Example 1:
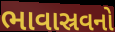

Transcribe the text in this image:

ભાવાસ્રવનો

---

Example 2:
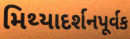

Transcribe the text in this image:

મિથ્યાદર્શનપૂર્વક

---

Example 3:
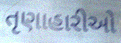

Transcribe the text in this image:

તૃણાહારીઓ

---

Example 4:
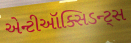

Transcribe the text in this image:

એન્ટીઑક્સિડન્ટ્સ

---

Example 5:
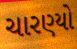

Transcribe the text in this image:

ચારણ્યો